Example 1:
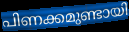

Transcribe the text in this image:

പിണക്കമുണ്ടായി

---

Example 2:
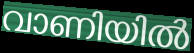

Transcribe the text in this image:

വാണിയിൽ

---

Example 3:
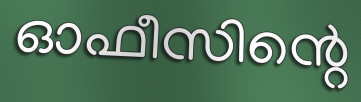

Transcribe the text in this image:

ഓഫീസിന്റെ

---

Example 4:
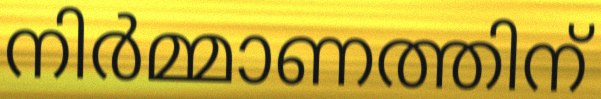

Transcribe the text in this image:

നിർമ്മാണത്തിന്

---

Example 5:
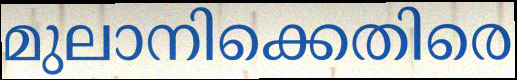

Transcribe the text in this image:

മുലാനിക്കെതിരെ